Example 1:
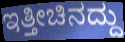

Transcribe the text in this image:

ಇತ್ತೀಚಿನದ್ದು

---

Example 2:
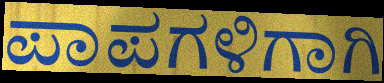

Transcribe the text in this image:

ಪಾಪಗಳಿಗಾಗಿ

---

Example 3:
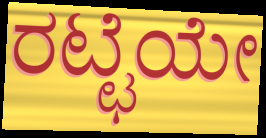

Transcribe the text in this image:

ರಟ್ಟೆಯೇ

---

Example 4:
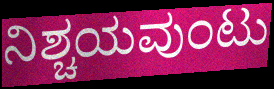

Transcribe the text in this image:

ನಿಶ್ಚಯವುಂಟು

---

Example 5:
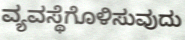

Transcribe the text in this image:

ವ್ಯವಸ್ಥೆಗೊಳಿಸುವುದು